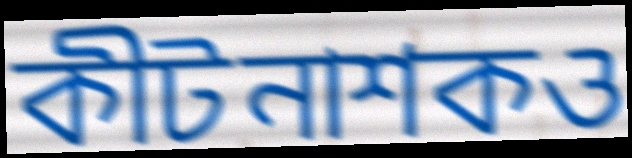
কীটনাশকও